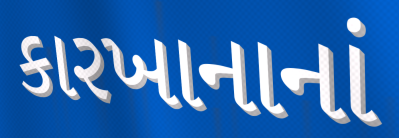
કારખાનાનાં